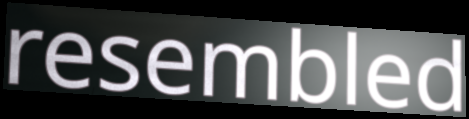
resembled